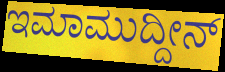
ಇಮಾಮುದ್ದೀನ್